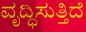
ವೃದ್ಧಿಸುತ್ತಿದೆ